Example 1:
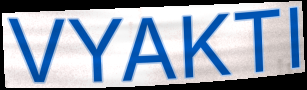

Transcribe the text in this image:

VYAKTI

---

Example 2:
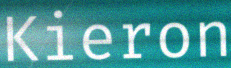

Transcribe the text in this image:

Kieron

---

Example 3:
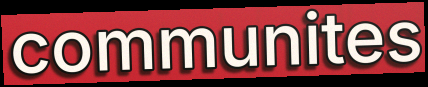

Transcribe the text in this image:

communites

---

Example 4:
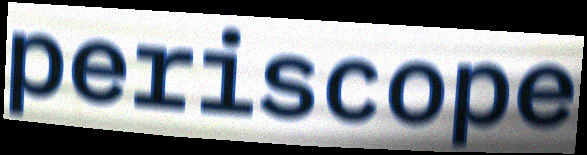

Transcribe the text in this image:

periscope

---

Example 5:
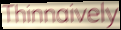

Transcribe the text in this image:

Thinnaively